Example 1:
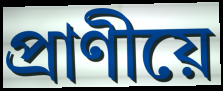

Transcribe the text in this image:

প্ৰাণীয়ে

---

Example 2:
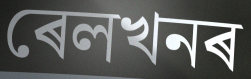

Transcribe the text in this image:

ৰেলখনৰ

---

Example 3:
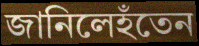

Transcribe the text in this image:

জানিলেহঁতেন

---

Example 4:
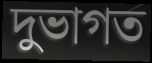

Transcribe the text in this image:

দুভাগত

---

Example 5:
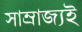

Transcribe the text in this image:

সাম্ৰাজ্যই